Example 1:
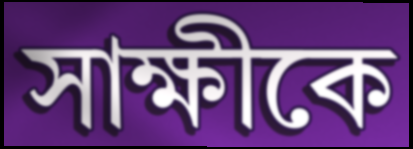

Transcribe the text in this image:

সাক্ষীকে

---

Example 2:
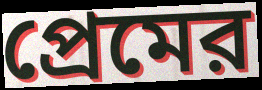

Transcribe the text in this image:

প্রেমের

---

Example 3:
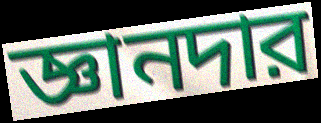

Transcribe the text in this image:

জ্ঞানদার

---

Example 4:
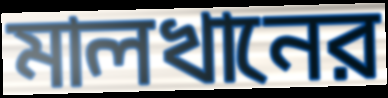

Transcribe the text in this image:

মালখানের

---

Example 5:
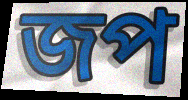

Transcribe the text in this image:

জপ